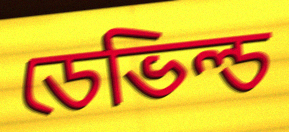
ডেভিল্ড